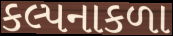
કલ્પનાકળા